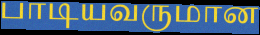
பாடியவருமான